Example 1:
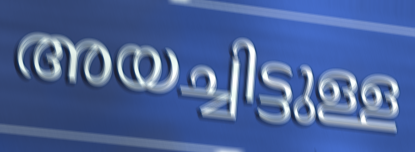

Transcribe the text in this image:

അയച്ചിട്ടുള്ള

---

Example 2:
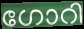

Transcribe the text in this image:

ഗോറി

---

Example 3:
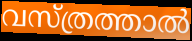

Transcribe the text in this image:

വസ്ത്രത്താൽ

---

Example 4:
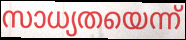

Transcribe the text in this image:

സാധ്യതയെന്ന്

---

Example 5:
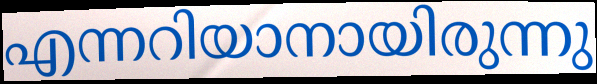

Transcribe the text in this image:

എന്നറിയാനായിരുന്നു